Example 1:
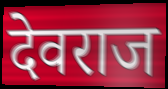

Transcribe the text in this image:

देवराज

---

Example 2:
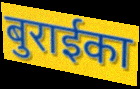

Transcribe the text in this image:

बुराईका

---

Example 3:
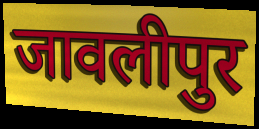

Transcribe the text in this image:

जावलीपुर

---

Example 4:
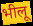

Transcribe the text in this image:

भीलू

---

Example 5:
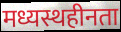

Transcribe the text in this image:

मध्यस्थहीनता